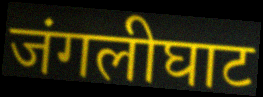
जंगलीघाट